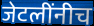
जेटलींनीच